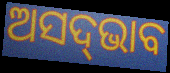
ଅସଦ୍‌ଭାବ